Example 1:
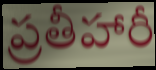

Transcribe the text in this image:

ప్రతీహారీ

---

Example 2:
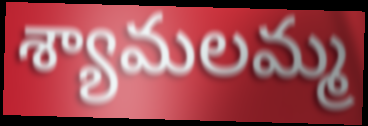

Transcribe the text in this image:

శ్యామలమ్మ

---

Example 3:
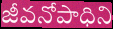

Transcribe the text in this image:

జీవనోపాధిని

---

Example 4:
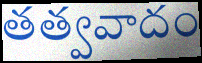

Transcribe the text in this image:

తత్వవాదం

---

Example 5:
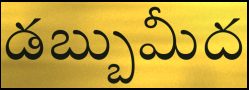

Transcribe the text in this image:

డబ్బుమీద